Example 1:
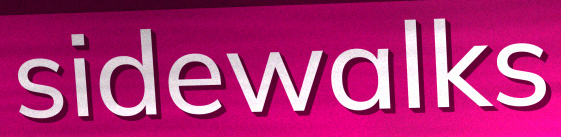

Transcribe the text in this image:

sidewalks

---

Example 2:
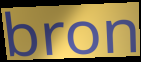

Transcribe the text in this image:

bron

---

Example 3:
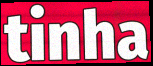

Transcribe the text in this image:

tinha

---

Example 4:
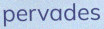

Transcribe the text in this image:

pervades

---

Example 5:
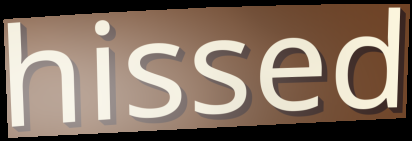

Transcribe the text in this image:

hissed